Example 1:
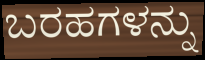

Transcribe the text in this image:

ಬರಹಗಳನ್ನು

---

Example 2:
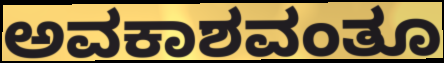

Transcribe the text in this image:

ಅವಕಾಶವಂತೂ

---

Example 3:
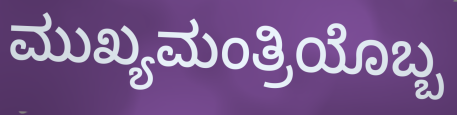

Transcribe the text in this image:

ಮುಖ್ಯಮಂತ್ರಿಯೊಬ್ಬ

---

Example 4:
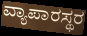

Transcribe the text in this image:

ವ್ಯಾಪಾರಸ್ಥರ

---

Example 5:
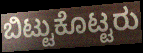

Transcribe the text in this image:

ಬಿಟ್ಟುಕೊಟ್ಟರು